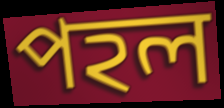
পহল